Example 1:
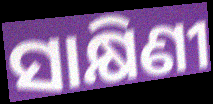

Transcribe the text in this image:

ସାକ୍ଷିଣୀ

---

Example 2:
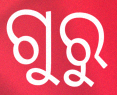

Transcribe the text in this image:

ଗୁରୁ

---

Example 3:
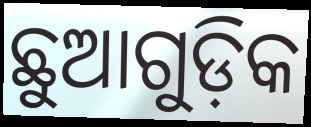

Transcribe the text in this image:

ଛୁଆଗୁଡ଼ିକ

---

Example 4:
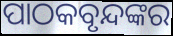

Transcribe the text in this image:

ପାଠକବୃନ୍ଦଙ୍କର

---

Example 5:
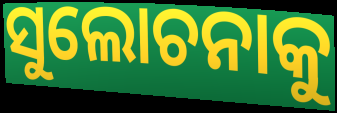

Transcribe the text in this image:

ସୁଲୋଚନାକୁ